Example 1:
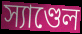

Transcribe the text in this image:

স্যাণ্ডেল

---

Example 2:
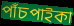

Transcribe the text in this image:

পাঁচপাইকা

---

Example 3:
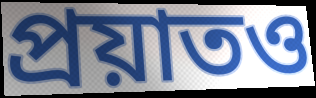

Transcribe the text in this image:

প্রয়াতও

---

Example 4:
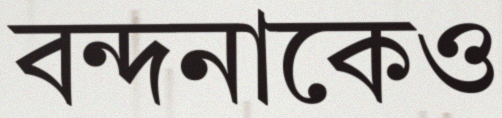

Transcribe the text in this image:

বন্দনাকেও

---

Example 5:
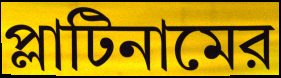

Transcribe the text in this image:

প্লাটিনামের